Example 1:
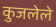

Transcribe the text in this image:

कुजलेले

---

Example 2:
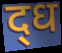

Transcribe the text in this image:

द्ध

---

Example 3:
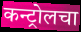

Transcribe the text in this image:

कन्ट्रोलचा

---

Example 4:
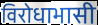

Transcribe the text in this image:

विरोधाभासी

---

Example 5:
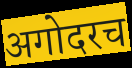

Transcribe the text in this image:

अगोदरच